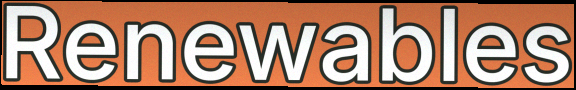
Renewables